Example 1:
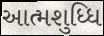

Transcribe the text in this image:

આત્મશુધ્ધિ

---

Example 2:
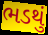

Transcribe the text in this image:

ભડથું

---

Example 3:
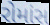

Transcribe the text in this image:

રોમાંસ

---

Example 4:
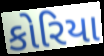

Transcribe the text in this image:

કોરિયા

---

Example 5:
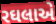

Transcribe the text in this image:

રઘલાએ